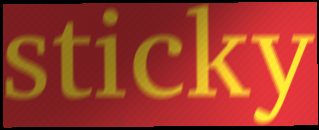
sticky